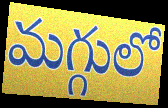
మగ్గులో